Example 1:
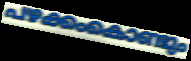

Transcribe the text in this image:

പഴക്കംകൊണ്ടും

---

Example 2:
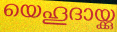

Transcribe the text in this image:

യെഹൂദായ്ക്കു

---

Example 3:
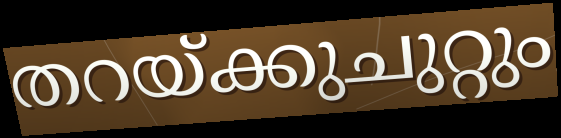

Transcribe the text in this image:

തറയ്ക്കുചുറ്റും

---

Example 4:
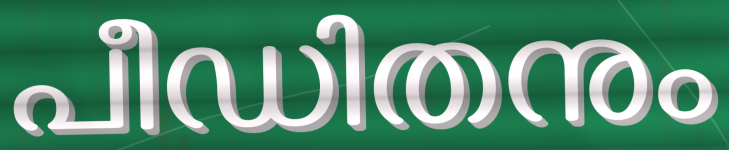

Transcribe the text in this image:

പീഡിതനും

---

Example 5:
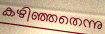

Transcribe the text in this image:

കഴിഞ്ഞതെന്നു